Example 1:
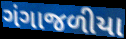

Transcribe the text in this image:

ગંગાજળીયા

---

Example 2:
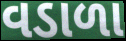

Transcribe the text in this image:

વડાળા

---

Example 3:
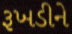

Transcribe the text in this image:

રૂખડીને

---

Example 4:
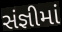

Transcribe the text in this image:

સંજ્ઞીમાં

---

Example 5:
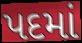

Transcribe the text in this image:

પદમાં